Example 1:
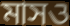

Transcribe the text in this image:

মাসও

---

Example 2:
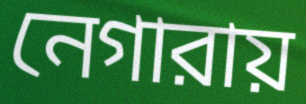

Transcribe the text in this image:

নেগারায়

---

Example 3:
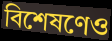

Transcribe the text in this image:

বিশেষণেও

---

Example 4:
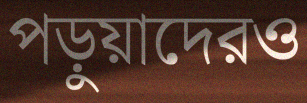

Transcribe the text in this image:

পড়ুয়াদেরও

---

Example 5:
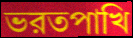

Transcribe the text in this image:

ভরতপাখি